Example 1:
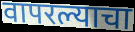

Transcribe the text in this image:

वापरल्याचा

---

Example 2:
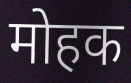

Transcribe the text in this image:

मोहक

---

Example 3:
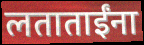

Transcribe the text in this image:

लताताईंना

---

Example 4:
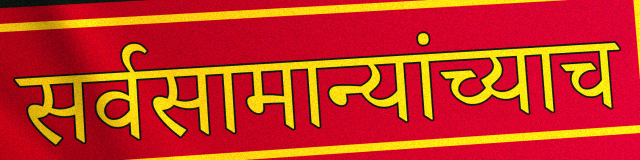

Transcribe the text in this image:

सर्वसामान्यांच्याच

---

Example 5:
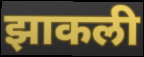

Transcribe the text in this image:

झाकली